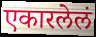
एकारलेलं